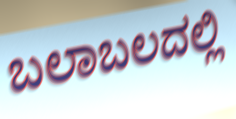
ಬಲಾಬಲದಲ್ಲಿ